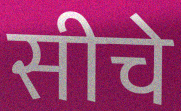
सीचे